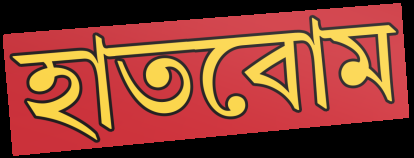
হাতবোম